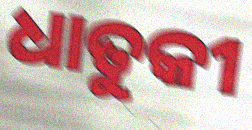
ଧାତୁକୀ